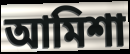
আমিশা